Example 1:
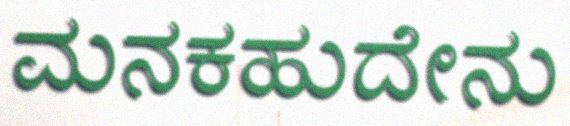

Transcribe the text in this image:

ಮನಕಹುದೇನು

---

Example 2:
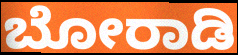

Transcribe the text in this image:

ಬೋರಾಡಿ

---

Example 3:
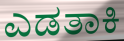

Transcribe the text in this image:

ಎಡತಾಕಿ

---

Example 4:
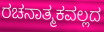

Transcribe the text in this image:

ರಚನಾತ್ಮಕವಲ್ಲದ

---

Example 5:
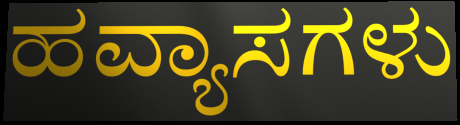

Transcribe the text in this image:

ಹವ್ಯಾಸಗಳು